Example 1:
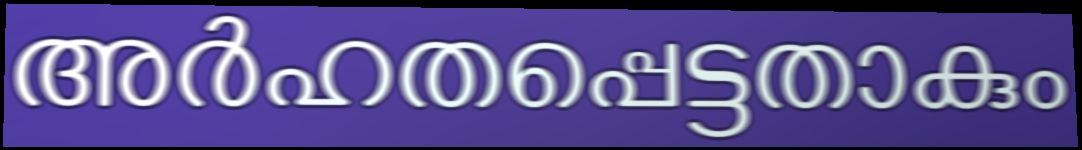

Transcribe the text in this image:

അർഹതപ്പെട്ടതാകും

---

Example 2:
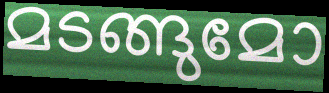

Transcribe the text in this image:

മടങ്ങുമോ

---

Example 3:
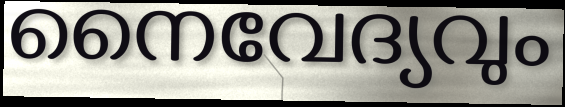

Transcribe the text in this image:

നൈവേദ്യവും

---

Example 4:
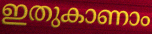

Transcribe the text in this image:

ഇതുകാണാം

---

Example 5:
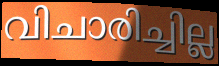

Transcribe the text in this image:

വിചാരിച്ചില്ല